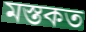
মস্তকত